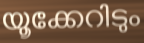
യൂക്കേറിടും